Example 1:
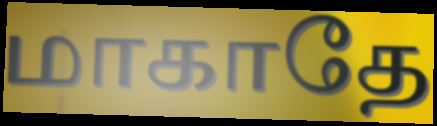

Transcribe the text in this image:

மாகாதே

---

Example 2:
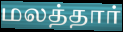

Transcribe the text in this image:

மலத்தார்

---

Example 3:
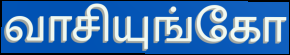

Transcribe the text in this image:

வாசியுங்கோ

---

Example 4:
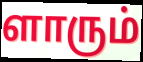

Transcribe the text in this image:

ளாரும்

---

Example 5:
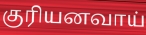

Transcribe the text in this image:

குரியனவாய்